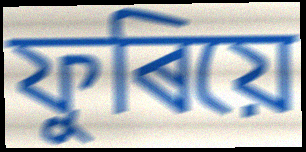
ফুৰিয়ে